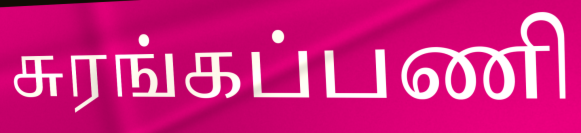
சுரங்கப்பணி